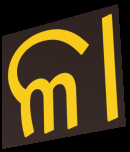
ଳା